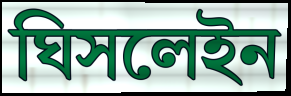
ঘিসলেইন